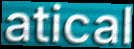
atical